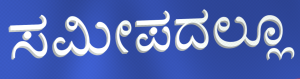
ಸಮೀಪದಲ್ಲೂ